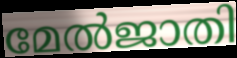
മേൽജാതി